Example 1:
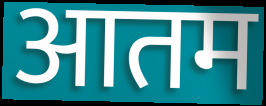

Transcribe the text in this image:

आतम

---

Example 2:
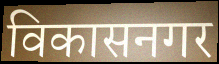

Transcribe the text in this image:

विकासनगर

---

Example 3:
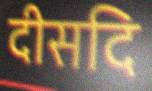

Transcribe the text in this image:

दीसदि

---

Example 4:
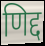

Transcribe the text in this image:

णिद्द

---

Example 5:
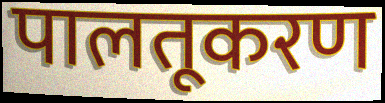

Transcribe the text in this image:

पालतूकरण